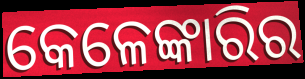
କେଳେଙ୍କାରିର